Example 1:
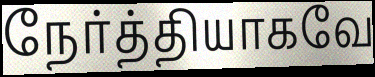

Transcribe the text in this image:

நேர்த்தியாகவே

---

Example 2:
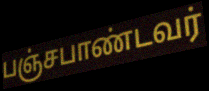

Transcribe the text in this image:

பஞ்சபாண்டவர்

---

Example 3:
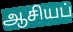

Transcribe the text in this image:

ஆசியப்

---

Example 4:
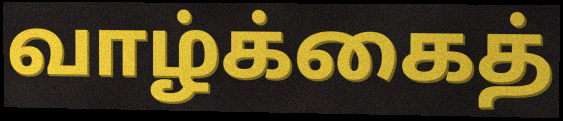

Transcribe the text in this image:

வாழ்க்கைத்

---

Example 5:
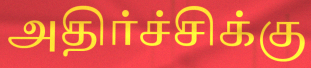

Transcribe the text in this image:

அதிர்ச்சிக்கு